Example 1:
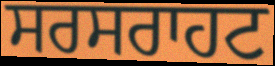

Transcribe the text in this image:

ਸਰਸਰਾਹਟ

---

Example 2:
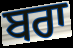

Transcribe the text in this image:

ਬਰਾ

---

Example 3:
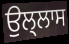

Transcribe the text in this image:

ਉਲ੍ਲਾਸ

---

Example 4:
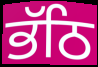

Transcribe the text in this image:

ਭੱਠਿ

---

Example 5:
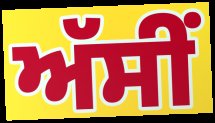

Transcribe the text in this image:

ਅੱਸੀਂ